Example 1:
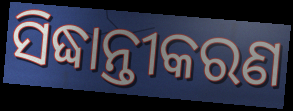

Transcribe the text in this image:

ସିଦ୍ଧାନ୍ତୀକରଣ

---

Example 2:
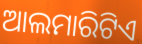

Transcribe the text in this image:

ଆଲମାରିଟିଏ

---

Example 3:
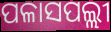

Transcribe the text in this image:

ପଳାସପଲ୍ଲୀ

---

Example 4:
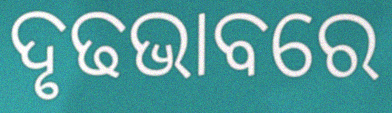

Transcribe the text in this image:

ଦୃଢଭାବରେ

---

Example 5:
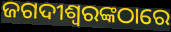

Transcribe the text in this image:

ଜଗଦୀଶ୍ୱରଙ୍କଠାରେ